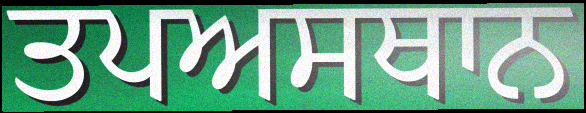
ਤਪਅਸਥਾਨ